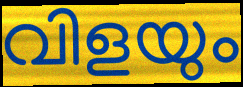
വിളയും